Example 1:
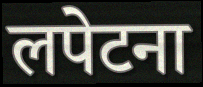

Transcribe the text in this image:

लपेटना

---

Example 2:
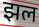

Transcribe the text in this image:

झल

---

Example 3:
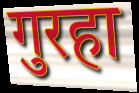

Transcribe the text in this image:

गुरहा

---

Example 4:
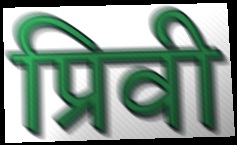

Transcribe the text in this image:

प्रिवी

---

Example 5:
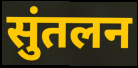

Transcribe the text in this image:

सुंतलन